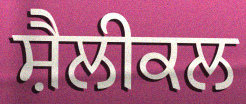
ਸ਼ੈਲੀਕਲ